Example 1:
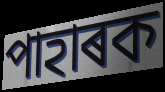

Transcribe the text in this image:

পাহাৰক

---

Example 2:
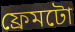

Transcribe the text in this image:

ফ্ৰেমটো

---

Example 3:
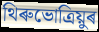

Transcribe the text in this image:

থিৰুভোত্ৰিয়ুৰ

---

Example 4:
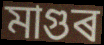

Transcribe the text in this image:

মাগুৰ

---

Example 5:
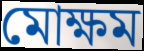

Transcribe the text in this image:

মোক্ষম